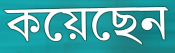
কয়েছেন